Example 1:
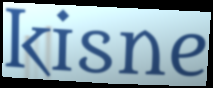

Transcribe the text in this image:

kisne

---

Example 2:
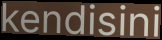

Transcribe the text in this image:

kendisini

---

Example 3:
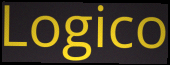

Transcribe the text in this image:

Logico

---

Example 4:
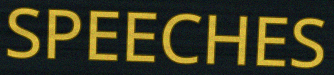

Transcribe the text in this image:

SPEECHES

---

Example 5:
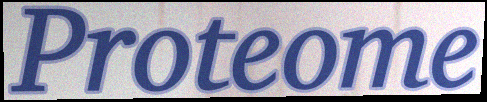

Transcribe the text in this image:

Proteome